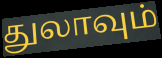
துலாவும்